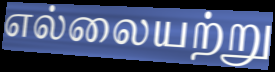
எல்லையற்று